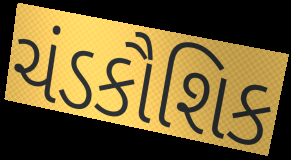
ચંડકૌશિક